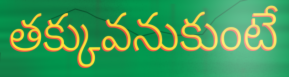
తక్కువనుకుంటే